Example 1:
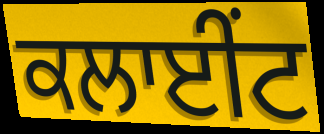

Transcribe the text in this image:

ਕਲਾਈਂਟ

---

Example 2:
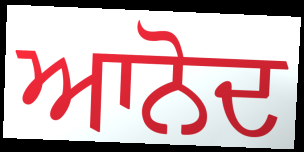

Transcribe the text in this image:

ਆਨੋਦ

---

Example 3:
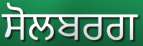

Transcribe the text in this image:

ਸੋਲਬਰਗ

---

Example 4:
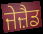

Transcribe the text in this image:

ਜੇਜ਼ੈਡ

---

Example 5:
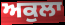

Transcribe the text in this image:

ਅਕੁਲਾ